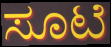
ಸೂಟೆ